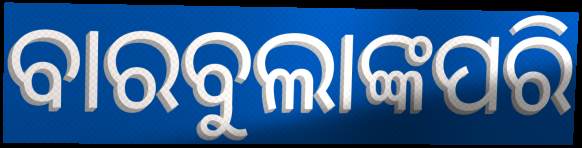
ବାରବୁଲାଙ୍କପରି